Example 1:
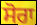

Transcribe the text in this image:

ਸੋਰਾ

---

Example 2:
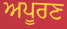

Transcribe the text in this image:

ਅਪੂਰਣ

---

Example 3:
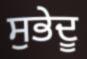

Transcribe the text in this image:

ਸੁਭੇਦੂ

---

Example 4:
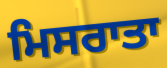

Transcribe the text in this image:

ਮਿਸਰਾਤਾ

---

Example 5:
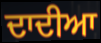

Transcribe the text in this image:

ਦਾਦੀਆ